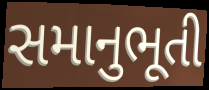
સમાનુભૂતી